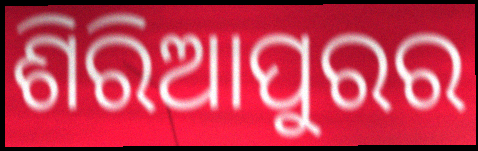
ଶିରିଆପୁରର